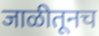
जाळीतूनच